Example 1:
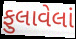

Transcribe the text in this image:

ફુલાવેલાં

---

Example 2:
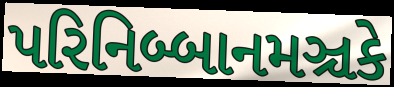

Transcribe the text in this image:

પરિનિબ્બાનમઞ્ચકે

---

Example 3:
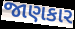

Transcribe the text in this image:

જાણકાર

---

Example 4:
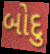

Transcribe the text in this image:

બોદુ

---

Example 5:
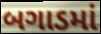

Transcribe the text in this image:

બગાડમાં